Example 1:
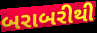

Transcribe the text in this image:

બરાબરીથી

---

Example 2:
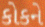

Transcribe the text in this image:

કોકને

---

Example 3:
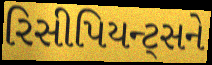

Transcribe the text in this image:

રિસીપિયન્ટ્સને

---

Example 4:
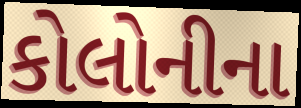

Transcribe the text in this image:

કોલોનીના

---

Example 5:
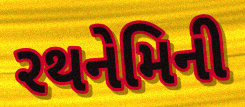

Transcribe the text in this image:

રથનેમિની